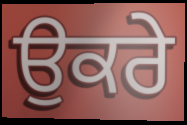
ਉਕਰੇ